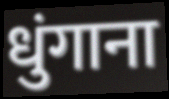
धुंगाना